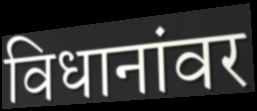
विधानांवर